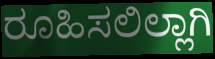
ರೂಹಿಸಲಿಲ್ಲಾಗಿ